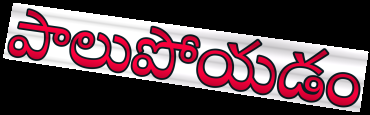
పాలుపోయడం